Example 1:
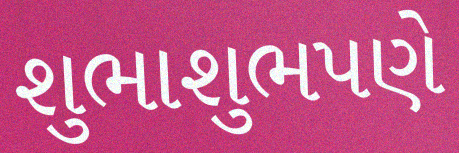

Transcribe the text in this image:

શુભાશુભપણે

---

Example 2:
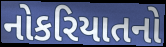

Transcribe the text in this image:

નોકરિયાતનો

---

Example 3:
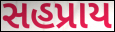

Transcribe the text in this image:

સહપ્રાય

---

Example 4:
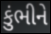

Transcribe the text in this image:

કુંભીને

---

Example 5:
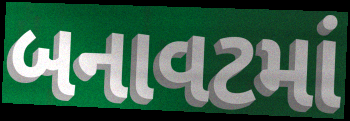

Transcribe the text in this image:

બનાવટમાં